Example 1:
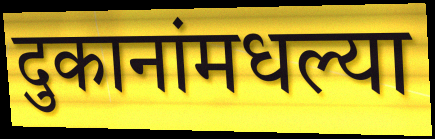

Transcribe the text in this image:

दुकानांमधल्या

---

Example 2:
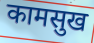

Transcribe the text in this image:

कामसुख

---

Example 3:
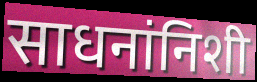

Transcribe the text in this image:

साधनांनिशी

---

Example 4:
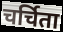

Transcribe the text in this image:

चर्चिता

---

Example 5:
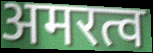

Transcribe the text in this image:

अमरत्व